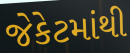
જેકેટમાંથી